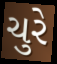
ચુરે